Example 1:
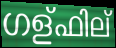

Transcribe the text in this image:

ഗള്ഫില്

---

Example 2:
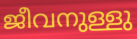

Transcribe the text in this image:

ജീവനുള്ളു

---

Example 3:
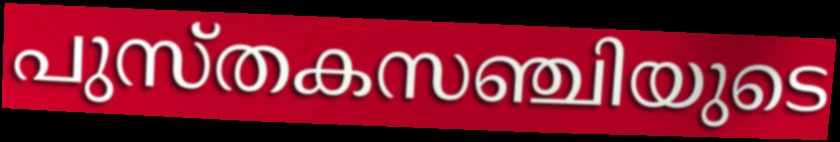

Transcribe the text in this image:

പുസ്തകസഞ്ചിയുടെ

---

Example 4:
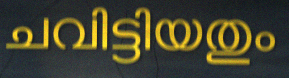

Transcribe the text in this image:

ചവിട്ടിയതും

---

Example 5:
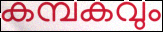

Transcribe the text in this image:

കമ്പകവും